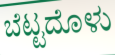
ಬೆಟ್ಟದೊಳು